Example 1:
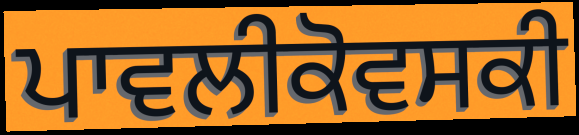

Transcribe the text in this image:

ਪਾਵਲੀਕੋਵਸਕੀ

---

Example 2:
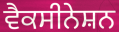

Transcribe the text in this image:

ਵੈਕਸੀਨੇਸ਼ਨ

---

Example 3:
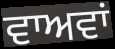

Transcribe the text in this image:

ਵਾਅਵਾਂ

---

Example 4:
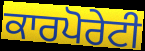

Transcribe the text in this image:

ਕਾਰਪੋਰੇਟੀ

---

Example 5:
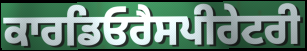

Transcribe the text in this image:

ਕਾਰਡਿਓਰੈਸਪੀਰੇਟਰੀ